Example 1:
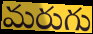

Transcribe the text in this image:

మరుగు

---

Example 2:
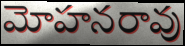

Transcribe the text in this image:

మోహనరావు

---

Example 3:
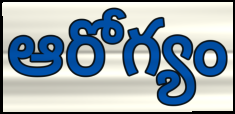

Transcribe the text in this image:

ఆరోగ్యం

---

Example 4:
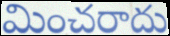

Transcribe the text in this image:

మించరాదు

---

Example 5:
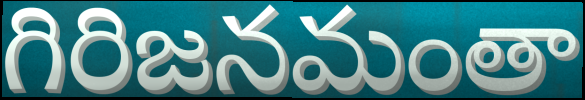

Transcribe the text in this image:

గిరిజనమంతా